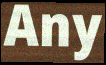
Any